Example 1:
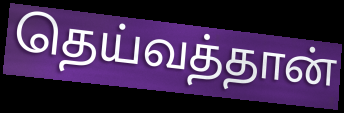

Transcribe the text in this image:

தெய்வத்தான்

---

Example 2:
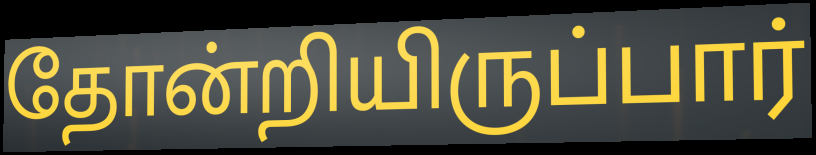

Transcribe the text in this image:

தோன்றியிருப்பார்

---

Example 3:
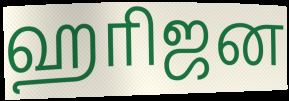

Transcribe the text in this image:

ஹரிஜன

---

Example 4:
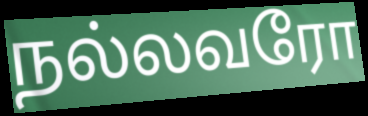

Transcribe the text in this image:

நல்லவரோ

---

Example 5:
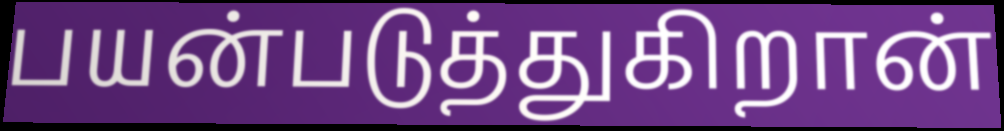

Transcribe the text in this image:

பயன்படுத்துகிறான்